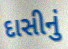
દાસીનું